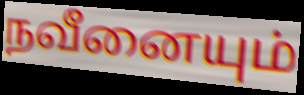
நவீனையும்